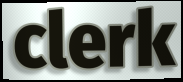
clerk